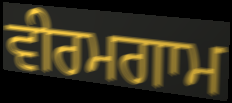
ਵੀਰਮਗਾਮ